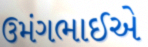
ઉમંગભાઈએ